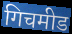
गिचमीड